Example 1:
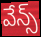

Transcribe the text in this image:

వేన్స్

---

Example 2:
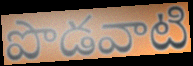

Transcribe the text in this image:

పొడవాటి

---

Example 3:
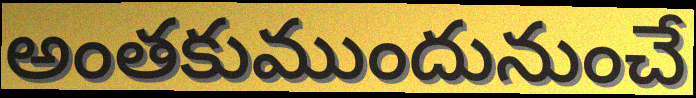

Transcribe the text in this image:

అంతకుముందునుంచే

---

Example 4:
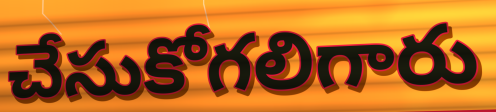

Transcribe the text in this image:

చేసుకోగలిగారు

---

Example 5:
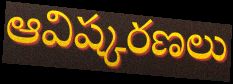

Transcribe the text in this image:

ఆవిష్కరణలు